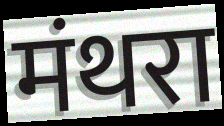
मंथरा